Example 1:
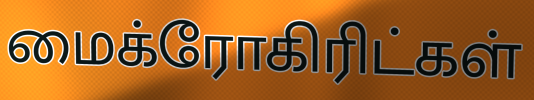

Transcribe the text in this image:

மைக்ரோகிரிட்கள்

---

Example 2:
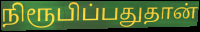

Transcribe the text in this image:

நிரூபிப்பதுதான்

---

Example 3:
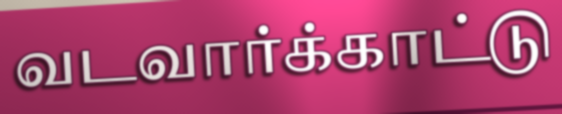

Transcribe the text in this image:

வடவார்க்காட்டு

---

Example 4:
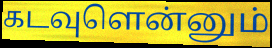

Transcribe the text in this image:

கடவுளென்னும்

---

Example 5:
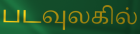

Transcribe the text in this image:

படவுலகில்